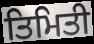
ਤਿਮਿਤੀ